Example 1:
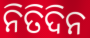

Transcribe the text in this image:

ନିତିଦିନ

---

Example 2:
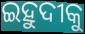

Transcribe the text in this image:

ଇହୁଦୀକୁ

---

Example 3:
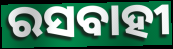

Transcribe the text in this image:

ରସବାହୀ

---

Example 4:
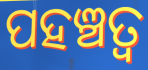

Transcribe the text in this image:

ପହଞ୍ଚତ୍ବ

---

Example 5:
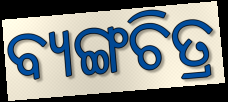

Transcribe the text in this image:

ବ୍ୟଙ୍ଗଚିତ୍ର